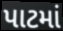
પાટમાં